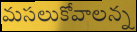
మసలుకోవాలన్న